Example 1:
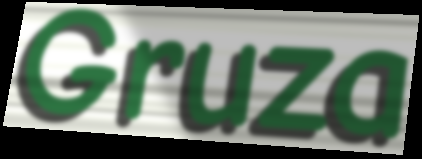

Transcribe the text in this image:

Gruza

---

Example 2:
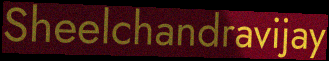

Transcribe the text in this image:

Sheelchandravijay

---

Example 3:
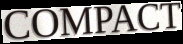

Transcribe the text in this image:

COMPACT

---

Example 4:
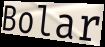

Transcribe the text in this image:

Bolar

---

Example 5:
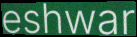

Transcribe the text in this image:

eshwar